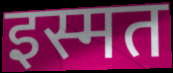
इस्मत